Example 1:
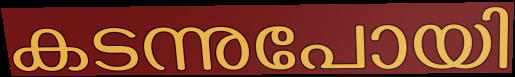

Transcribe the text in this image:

കടന്നുപോയി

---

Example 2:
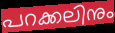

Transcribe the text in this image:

പറക്കലിനും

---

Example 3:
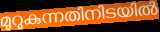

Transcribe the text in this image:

മുറുകുന്നതിനിടയിൽ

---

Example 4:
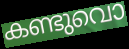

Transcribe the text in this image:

കണ്ടുവൊ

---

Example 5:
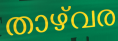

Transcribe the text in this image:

താഴ്‌വര